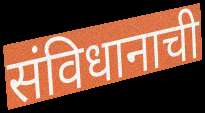
संविधानाची